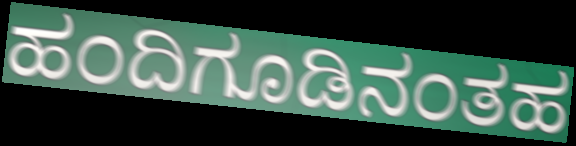
ಹಂದಿಗೂಡಿನಂತಹ